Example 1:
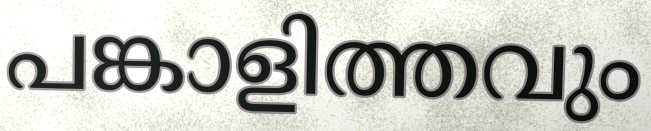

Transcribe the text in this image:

പങ്കാളിത്തവും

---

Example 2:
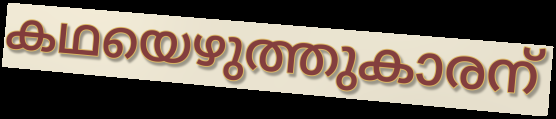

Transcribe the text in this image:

കഥയെഴുത്തുകാരന്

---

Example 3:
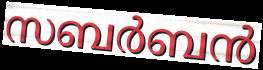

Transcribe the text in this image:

സബർബൻ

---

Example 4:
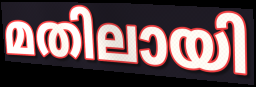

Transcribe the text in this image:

മതിലായി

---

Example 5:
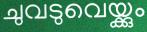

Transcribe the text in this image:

ചുവടുവെയ്ക്കും